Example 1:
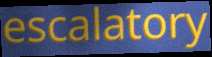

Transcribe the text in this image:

escalatory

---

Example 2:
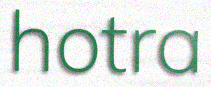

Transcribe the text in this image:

hotra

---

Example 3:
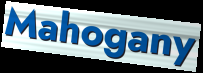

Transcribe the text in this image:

Mahogany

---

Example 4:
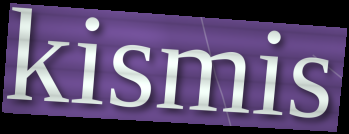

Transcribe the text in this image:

kismis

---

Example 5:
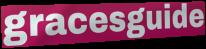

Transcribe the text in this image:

gracesguide